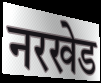
नरखेड